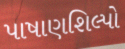
પાષાણશિલ્પો